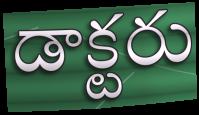
డాక్టరు